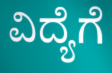
ವಿದ್ಯೆಗೆ